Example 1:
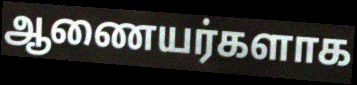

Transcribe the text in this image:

ஆணையர்களாக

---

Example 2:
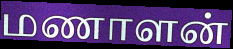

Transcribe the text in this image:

மணாளன்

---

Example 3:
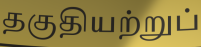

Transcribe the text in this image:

தகுதியற்றுப்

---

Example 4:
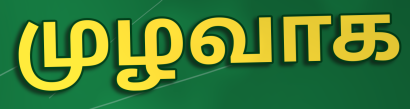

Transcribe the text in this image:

முழவாக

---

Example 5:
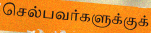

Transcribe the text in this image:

செல்பவர்களுக்குக்